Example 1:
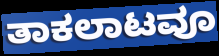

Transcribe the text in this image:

ತಾಕಲಾಟವೂ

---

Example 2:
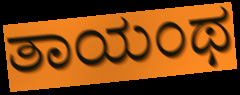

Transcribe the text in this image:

ತಾಯಂಥ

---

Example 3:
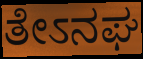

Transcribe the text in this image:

ತೇಽನಘ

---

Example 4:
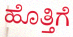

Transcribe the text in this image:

ಹೊತ್ತಿಗೆ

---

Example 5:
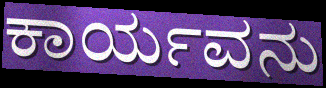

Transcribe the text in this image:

ಕಾರ್ಯವನು